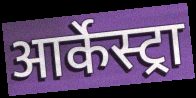
आर्केस्ट्रा